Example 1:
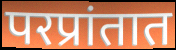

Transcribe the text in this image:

परप्रांतात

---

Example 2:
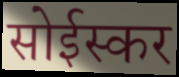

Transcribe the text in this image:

सोईस्कर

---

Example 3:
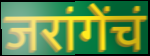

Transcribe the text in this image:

जरांगेंचं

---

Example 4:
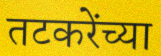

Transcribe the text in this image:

तटकरेंच्या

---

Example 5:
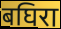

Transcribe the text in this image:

बघिरा